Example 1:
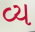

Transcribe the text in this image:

વ્ય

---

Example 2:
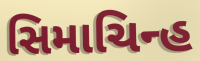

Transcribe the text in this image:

સિમાચિન્હ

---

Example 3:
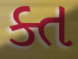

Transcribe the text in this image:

ક્ત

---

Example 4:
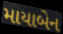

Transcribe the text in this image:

માયાબેન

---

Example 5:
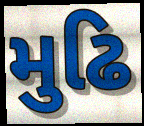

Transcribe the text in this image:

મુઢિ